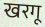
खरगू